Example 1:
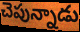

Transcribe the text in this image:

చెపున్నాడు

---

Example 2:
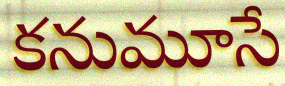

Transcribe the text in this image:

కనుమూసే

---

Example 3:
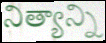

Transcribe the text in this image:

నిత్యాన్ని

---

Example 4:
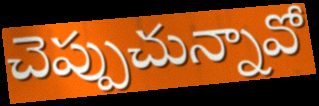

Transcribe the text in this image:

చెప్పుచున్నావో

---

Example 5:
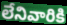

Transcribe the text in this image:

లేనివారికి